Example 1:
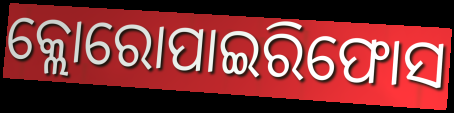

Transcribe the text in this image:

କ୍ଲୋରୋପାଇରିଫୋସ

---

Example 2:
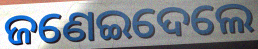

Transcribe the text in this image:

ଜଣେଇଦେଲେ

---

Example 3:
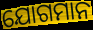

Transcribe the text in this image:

ଯୋଗମାନ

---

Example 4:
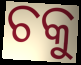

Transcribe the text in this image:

ଚକୁ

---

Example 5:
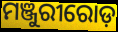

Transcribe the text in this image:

ମଞ୍ଜୁରୀରୋଡ଼